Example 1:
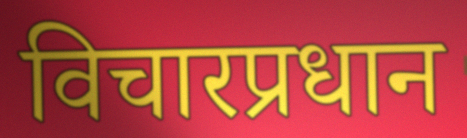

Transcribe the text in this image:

विचारप्रधान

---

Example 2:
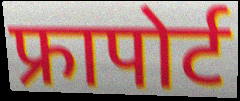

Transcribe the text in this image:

फ्रापोर्ट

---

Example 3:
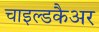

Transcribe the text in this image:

चाइल्डकैअर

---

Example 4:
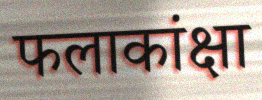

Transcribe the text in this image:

फलाकांक्षा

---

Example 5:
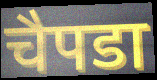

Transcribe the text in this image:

चैपडा